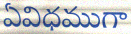
ఏవిధముగా